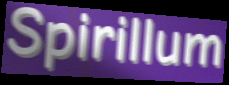
Spirillum